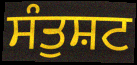
ਸੰਤੁਸ਼ਟ